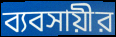
ব্যবসায়ীর